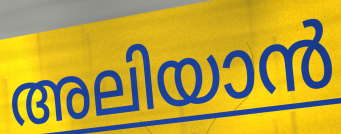
അലിയാൻ